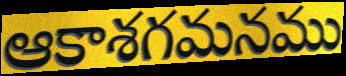
ఆకాశగమనము